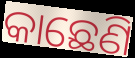
କାଛେଣି